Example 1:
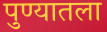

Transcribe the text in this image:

पुण्यातला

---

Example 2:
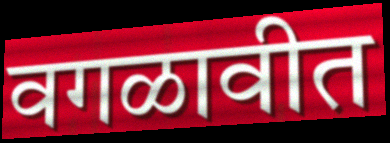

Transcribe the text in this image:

वगळावीत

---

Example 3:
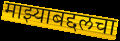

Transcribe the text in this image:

माझ्याबद्दलचा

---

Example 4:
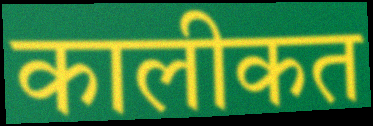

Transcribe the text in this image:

कालीकत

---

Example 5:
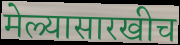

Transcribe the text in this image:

मेल्यासारखीच